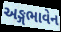
અઙ્ગભાવેન